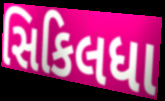
સિકિલધા